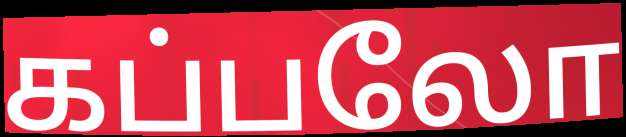
கப்பலோ